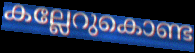
കല്ലേറുകൊണ്ട